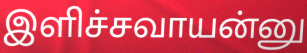
இளிச்சவாயன்னு